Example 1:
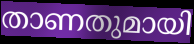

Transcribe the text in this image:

താണതുമായി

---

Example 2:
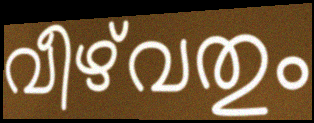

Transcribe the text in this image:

വീഴ്‌വതും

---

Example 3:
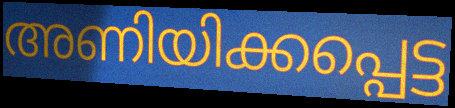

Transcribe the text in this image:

അണിയിക്കപ്പെട്ട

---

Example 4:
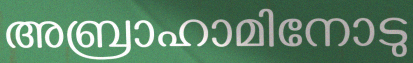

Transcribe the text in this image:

അബ്രാഹാമിനോടു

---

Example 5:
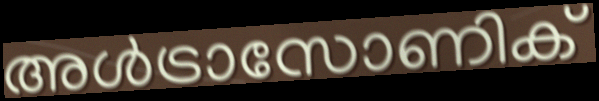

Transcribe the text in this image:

അൾട്രാസോണിക്